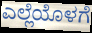
ಎಲ್ಲೆಯೊಳಗೆ